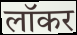
लॉकर